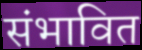
संभावित